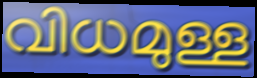
വിധമുള്ള